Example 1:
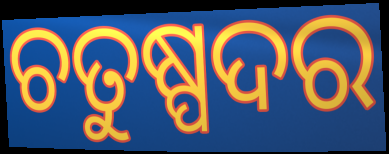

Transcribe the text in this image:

ଚତୁଷ୍ପଦର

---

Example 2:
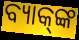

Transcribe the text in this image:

ବ୍ୟାକ୍‍ଙ୍କ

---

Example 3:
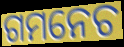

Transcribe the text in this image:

ଗମନେଚ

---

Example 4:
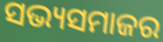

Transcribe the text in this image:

ସଭ୍ୟସମାଜର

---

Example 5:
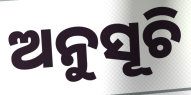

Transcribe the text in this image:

ଅନୁସୂଚି